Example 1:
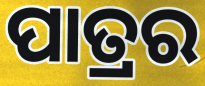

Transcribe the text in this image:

ପାତ୍ରର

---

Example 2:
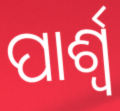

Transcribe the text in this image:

ପାର୍ଶ୍ୱ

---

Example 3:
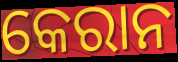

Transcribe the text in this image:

କେରାନ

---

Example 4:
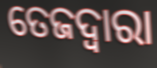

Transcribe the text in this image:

ତେଜଦ୍ୱାରା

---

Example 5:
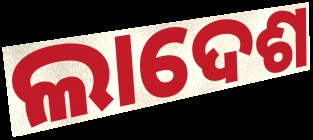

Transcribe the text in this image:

ଲାଦେଶ